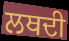
ਲਥਦੀ